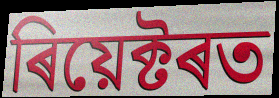
ৰিয়েক্টৰত